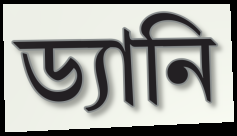
ড্যানি